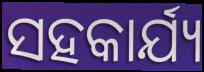
ସହକାର୍ଯ୍ୟ